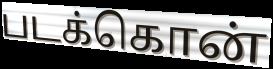
படக்கொன்